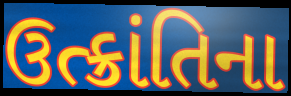
ઉત્ક્રાંતિના